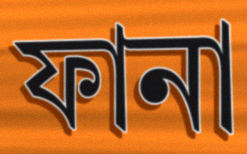
ফানা